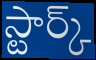
స్టార్క్